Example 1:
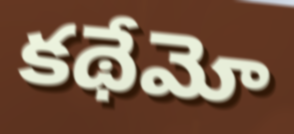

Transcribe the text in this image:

కథేమో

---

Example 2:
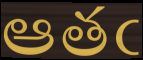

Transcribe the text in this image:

ఆతఁ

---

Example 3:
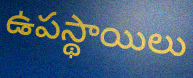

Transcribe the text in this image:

ఉపస్థాయిలు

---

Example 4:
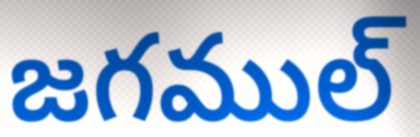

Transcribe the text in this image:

జగముల్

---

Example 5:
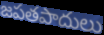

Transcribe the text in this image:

జపతపాదులు